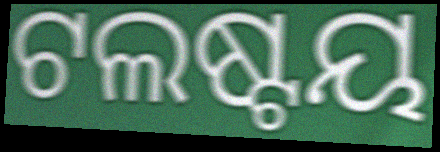
ଟଲଷ୍ଟୟ